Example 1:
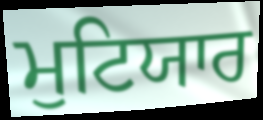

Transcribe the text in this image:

ਮੁਟਿਯਾਰ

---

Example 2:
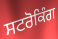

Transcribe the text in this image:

ਸਟਰੋਕਿੰਗ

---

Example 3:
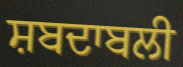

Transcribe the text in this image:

ਸ਼ਬਦਾਬਲੀ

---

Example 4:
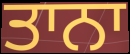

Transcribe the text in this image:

ਤਾਨਾ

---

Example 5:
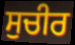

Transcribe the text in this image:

ਸੁਚੀਰ